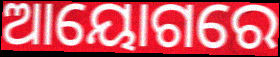
ଆୟୋଗରେ